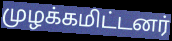
முழக்கமிட்டனர்